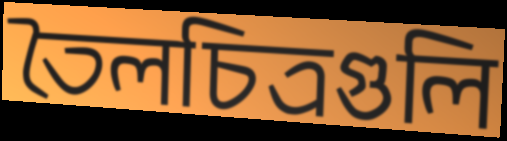
তৈলচিত্রগুলি